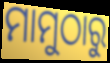
ମାମୁଠାରୁ